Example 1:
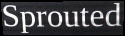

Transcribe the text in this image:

Sprouted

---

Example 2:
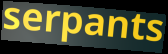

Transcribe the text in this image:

serpants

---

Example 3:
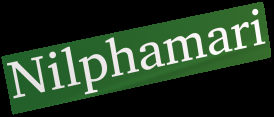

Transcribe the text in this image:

Nilphamari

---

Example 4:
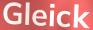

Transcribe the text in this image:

Gleick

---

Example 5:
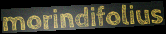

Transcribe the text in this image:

morindifolius